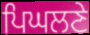
ਪਿਘਲਣੇ